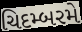
ચિદમ્બરમે